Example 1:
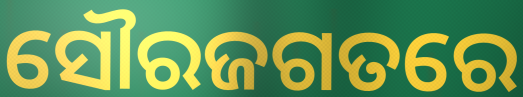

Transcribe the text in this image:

ସୌରଜଗତରେ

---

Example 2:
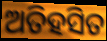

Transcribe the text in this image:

ଅତିହସିତ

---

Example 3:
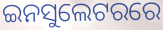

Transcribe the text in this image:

ଇନସୁଲେଟରରେ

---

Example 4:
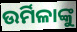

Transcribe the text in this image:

ଉର୍ମିଳାଙ୍କୁ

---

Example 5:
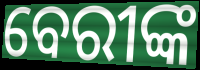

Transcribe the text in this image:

ବେରୀଙ୍କ